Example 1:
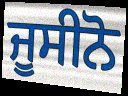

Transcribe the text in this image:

ਜੂਸੀਨੋ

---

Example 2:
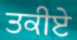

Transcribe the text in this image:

ਤਕੀਏ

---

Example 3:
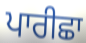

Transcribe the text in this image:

ਪਾਰੀਛਾ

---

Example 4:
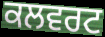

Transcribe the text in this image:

ਕਲਵਰਟ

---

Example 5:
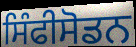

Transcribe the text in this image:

ਸਿੰਫੀਸੋਡਨ